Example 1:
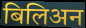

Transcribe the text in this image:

बिलिअन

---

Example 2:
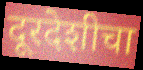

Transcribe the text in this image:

दूरदेशीचा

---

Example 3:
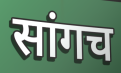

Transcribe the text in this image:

सांगच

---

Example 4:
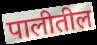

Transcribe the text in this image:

पालीतील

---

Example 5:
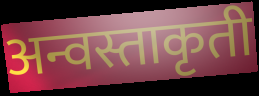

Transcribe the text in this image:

अन्वस्ताकृती